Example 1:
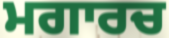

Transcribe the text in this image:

ਮਗਾਰਚ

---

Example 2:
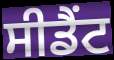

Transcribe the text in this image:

ਸੀਡੈਂਟ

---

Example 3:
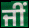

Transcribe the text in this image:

ਜੀਂ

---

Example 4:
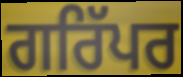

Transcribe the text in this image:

ਗਰਿੱਪਰ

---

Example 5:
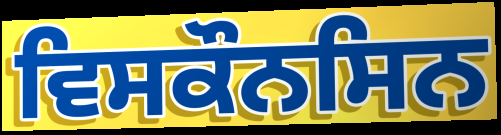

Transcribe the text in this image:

ਵਿਸਕੌਨਸਿਨ